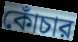
কোঁচার